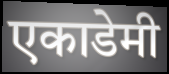
एकाडेमी